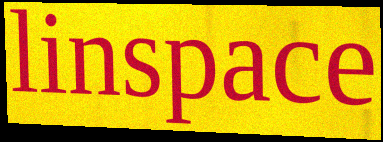
linspace